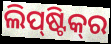
ଲିପ୍‌ଷ୍ଟିକ୍‌ର